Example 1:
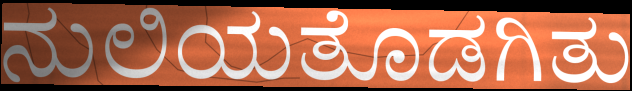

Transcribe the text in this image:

ನುಲಿಯತೊಡಗಿತು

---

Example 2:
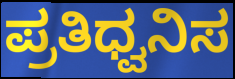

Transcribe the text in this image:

ಪ್ರತಿಧ್ವನಿಸ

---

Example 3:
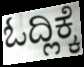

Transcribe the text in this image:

ಓದ್ಲಿಕ್ಕೆ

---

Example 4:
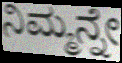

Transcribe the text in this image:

ನಿಮ್ಮನ್ನೇ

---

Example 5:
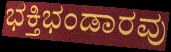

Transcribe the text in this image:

ಭಕ್ತಿಭಂಡಾರವು